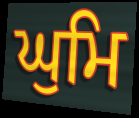
ਘੁਮਿ